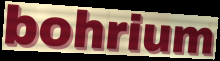
bohrium